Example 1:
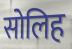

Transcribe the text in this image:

सोलिह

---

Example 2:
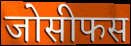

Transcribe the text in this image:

जोसीफस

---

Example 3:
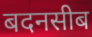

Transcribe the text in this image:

बदनसीब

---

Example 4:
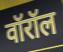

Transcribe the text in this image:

वॉरॉल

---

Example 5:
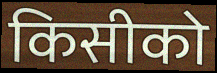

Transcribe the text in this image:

किसीको